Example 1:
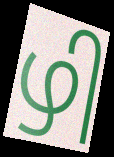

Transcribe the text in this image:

ഴി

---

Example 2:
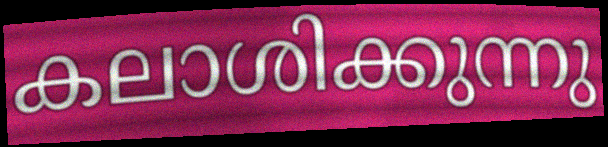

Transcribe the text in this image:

കലാശിക്കുന്നു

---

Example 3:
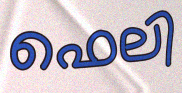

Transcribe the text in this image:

ഫെലി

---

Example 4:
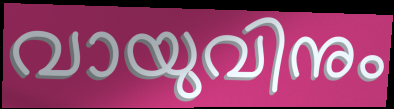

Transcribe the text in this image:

വായുവിനും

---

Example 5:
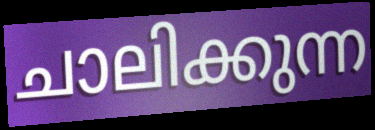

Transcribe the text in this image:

ചാലിക്കുന്ന